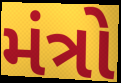
મંત્રો